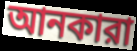
আনকারা